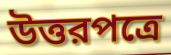
উত্তরপত্রে